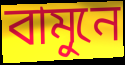
বামুনে